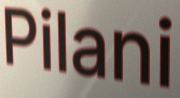
Pilani